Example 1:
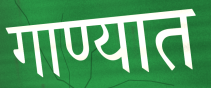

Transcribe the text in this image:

गाण्यात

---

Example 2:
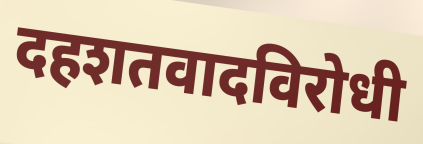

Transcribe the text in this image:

दहशतवादविरोधी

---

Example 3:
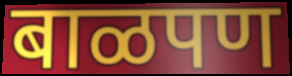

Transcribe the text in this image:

बाळपण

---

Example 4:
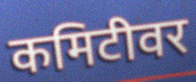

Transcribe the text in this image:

कमिटीवर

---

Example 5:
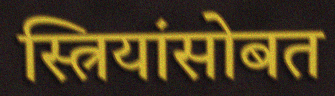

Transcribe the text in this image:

स्त्रियांसोबत